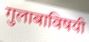
गुलाबाविषयी